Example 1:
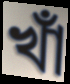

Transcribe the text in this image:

খাঁ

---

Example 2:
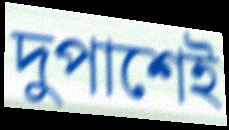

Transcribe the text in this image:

দুপাশেই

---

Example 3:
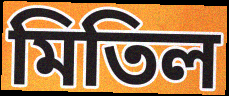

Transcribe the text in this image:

মিতিল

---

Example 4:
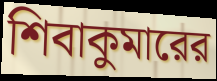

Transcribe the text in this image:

শিবাকুমারের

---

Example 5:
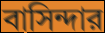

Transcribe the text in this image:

বাসিন্দার